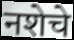
नशेचे